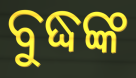
ବୁଦ୍ଧଙ୍କ